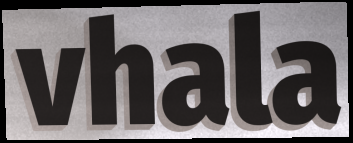
vhala